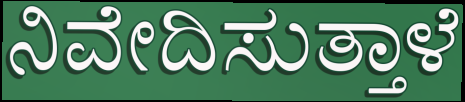
ನಿವೇದಿಸುತ್ತಾಳೆ